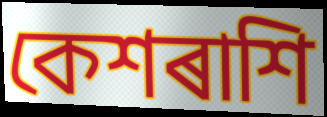
কেশৰাশি